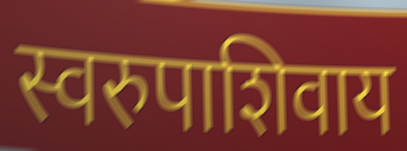
स्वरुपाशिवाय